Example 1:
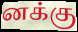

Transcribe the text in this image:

னக்கு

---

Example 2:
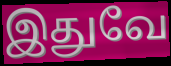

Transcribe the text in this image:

இதுவே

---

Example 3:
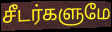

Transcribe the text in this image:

சீடர்களுமே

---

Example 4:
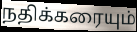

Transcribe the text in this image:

நதிக்கரையும்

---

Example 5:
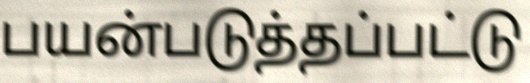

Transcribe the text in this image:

பயன்படுத்தப்பட்டு